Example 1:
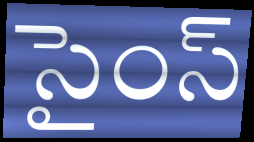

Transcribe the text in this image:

సైంస్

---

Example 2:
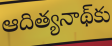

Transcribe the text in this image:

ఆదిత్యనాథ్‌కు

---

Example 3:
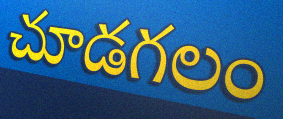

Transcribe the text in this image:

చూడగలం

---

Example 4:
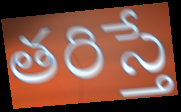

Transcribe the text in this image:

తరిస్తే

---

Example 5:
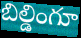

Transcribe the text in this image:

బిల్డింగూ